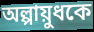
অল্পায়ুধকে